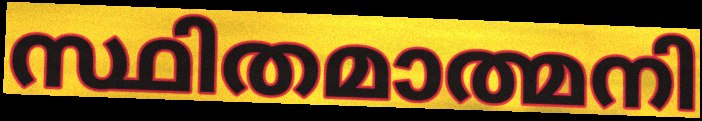
സ്ഥിതമാത്മനി